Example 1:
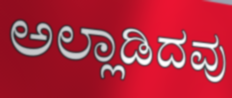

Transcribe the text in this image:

ಅಲ್ಲಾಡಿದವು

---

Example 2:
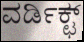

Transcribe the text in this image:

ವರ್ಡಿಕ್ಟ್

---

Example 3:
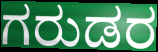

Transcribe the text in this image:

ಗರುಡರ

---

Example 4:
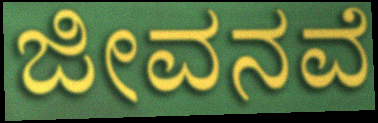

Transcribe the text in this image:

ಜೀವನವೆ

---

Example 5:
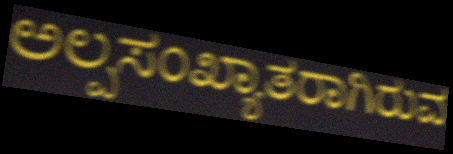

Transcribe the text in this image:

ಅಲ್ಪಸಂಖ್ಯಾತರಾಗಿರುವ